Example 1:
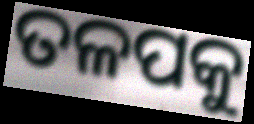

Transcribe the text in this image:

ତଳପକୁ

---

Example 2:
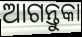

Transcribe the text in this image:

ଆଗନ୍ତୁକା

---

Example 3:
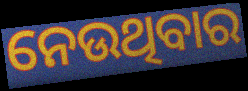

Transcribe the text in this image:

ନେଉଥିବାର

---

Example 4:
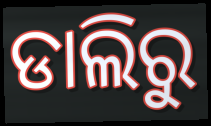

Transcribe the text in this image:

ଡାଲିରୁ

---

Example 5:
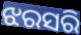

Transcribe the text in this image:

ଝରସରି